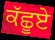
ਕੱਛੂਏ